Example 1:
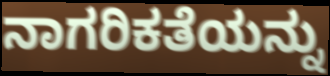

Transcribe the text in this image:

ನಾಗರಿಕತೆಯನ್ನು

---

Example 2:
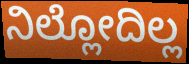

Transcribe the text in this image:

ನಿಲ್ಲೋದಿಲ್ಲ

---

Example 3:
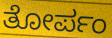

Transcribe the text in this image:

ತೋರ್ಪಂ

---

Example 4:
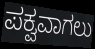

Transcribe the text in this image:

ಪಕ್ವವಾಗಲು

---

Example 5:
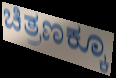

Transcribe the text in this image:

ಚಿತ್ರಣಕ್ಕೂ